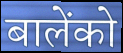
बालेंको